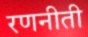
रणनीती